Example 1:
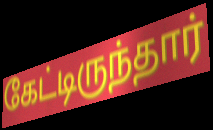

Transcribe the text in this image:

கேட்டிருந்தார்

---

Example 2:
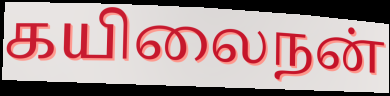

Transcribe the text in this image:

கயிலைநன்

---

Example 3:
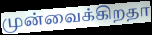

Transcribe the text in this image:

முன்வைக்கிறதா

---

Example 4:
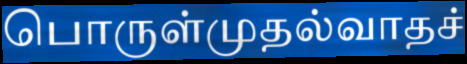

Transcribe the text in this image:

பொருள்முதல்வாதச்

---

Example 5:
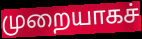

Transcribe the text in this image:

முறையாகச்